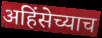
अहिंसेच्याच